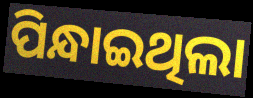
ପିନ୍ଧାଇଥିଲା